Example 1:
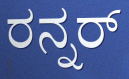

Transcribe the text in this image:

ರನ್ನರ್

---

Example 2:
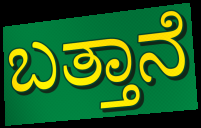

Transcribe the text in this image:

ಬತ್ತಾನೆ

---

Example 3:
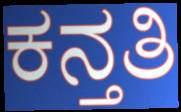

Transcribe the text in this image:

ಕನ್ತತಿ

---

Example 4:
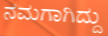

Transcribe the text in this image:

ನಮಗಾಗಿದ್ದು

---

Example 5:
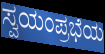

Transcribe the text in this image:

ಸ್ವಯಂಪ್ರಭೆಯ